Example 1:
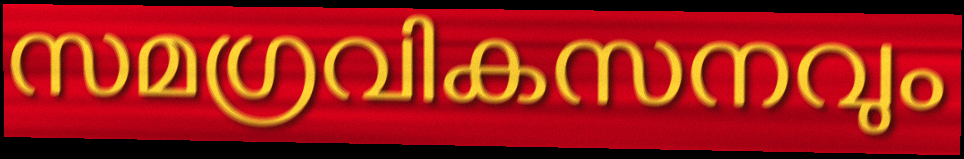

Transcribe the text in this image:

സമഗ്രവികസനവും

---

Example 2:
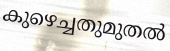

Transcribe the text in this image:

കുഴെച്ചതുമുതൽ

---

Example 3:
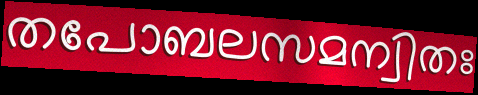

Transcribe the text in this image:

തപോബലസമന്വിതഃ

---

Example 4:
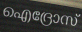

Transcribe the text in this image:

ഐദ്രോസ്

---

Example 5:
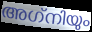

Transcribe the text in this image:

അഗ്‌നിയും